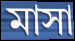
মাসা